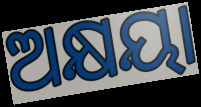
ଅକ୍ଷୟା